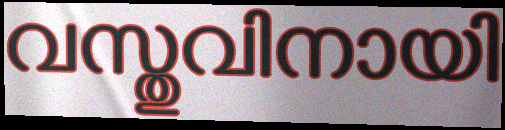
വസ്തുവിനായി